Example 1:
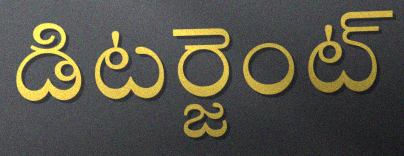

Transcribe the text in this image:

డిటర్జెంట్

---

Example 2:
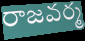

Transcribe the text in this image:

రాజవర్మ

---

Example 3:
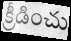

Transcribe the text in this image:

క్రీడించు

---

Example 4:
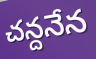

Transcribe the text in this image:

చన్దనేన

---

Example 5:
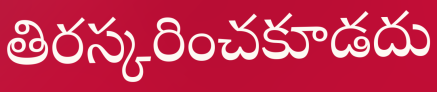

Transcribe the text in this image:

తిరస్కరించకూడదు